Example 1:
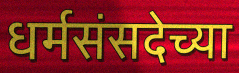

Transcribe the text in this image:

धर्मसंसदेच्या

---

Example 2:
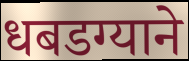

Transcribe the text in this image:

धबडग्याने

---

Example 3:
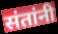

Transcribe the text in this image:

संतांनी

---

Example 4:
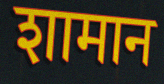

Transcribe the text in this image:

शामान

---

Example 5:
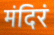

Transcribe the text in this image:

मंदिरं